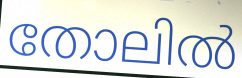
തോലിൽ